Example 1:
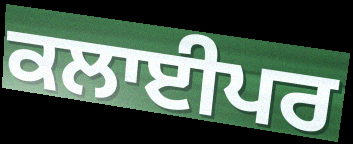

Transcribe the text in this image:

ਕਲਾਈਪਰ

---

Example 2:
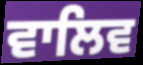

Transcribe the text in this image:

ਵਾਲਿਵ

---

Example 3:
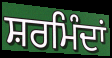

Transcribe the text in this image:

ਸ਼ਰਮਿੰਦਾਂ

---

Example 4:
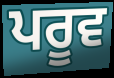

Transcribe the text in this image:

ਪਰੂਵ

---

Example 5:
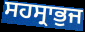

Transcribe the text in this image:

ਸਹਸ੍ਰਾਭੁਜ